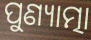
ପୁଣ୍ୟାତ୍ମା